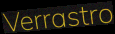
Verrastro